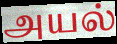
அயல்